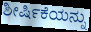
ಶೀರ್ಷಿಕೆಯನ್ನು